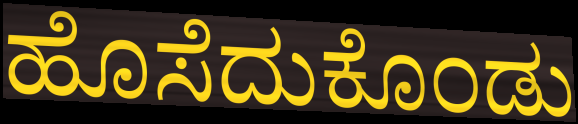
ಹೊಸೆದುಕೊಂಡು